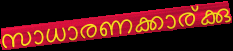
സാധാരണക്കാര്ക്കു